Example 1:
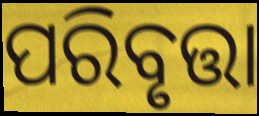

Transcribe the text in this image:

ପରିବୃତ୍ତା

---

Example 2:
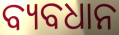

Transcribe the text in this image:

ବ୍ୟବଧାନ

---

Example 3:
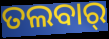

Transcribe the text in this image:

ତଲବାର୍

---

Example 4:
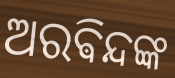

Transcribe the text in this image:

ଅରଵିନ୍ଦଙ୍କ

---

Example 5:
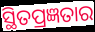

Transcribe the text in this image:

ସ୍ଥିତପ୍ରଜ୍ଞତାର